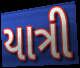
યાત્રી